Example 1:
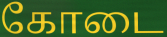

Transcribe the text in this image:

கோடை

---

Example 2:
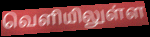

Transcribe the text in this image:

வெளியிலுள்ள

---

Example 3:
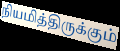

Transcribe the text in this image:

நியமித்திருக்கும்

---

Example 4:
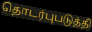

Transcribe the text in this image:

தொடர்புபடுத்தி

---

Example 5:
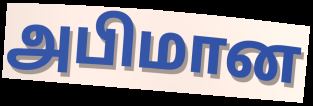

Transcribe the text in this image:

அபிமான